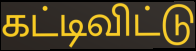
கட்டிவிட்டு